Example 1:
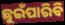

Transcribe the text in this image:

ଛୁଇଁପାରିବି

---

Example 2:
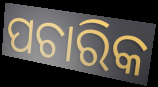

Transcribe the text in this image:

ପଚାରିକ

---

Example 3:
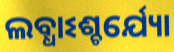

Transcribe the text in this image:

ଲବ୍ଧାଽଶ୍ଚର୍ଯ୍ୟୋ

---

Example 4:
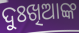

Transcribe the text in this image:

ଦୁଃଖିଆଙ୍କ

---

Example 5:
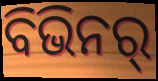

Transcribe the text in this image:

ବିଭିନର୍